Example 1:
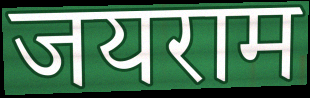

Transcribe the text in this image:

जयराम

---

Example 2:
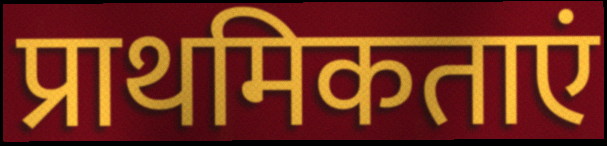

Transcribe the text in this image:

प्राथमिकताएं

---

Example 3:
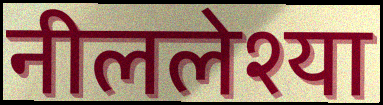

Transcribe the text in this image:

नीललेश्या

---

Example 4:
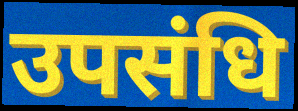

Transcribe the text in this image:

उपसंधि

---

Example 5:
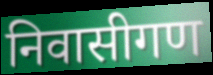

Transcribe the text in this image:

निवासीगण